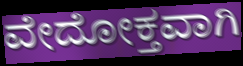
ವೇದೋಕ್ತವಾಗಿ